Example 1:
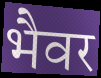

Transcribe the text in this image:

भैवर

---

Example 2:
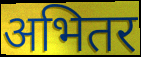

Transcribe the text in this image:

अभितर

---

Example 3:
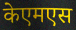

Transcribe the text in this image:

केएमएस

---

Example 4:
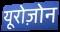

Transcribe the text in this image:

यूरोज़ोन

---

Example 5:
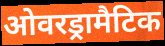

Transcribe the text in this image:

ओवरड्रामैटिक